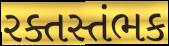
રક્તસ્તંભક